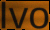
Ivo